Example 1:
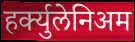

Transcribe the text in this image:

हर्क्युलेनिअम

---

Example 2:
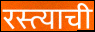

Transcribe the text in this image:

रस्त्याची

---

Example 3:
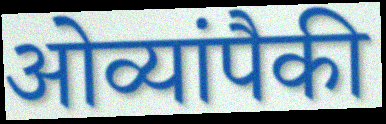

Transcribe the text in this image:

ओव्यांपैकी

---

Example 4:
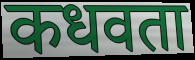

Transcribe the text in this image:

कधवता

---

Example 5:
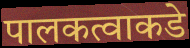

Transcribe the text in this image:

पालकत्वाकडे